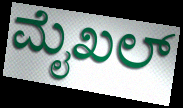
ಮೈಖಲ್